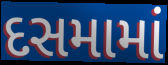
દસમામાં